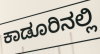
ಕಾಡೂರಿನಲ್ಲಿ